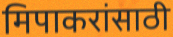
मिपाकरांसाठी